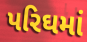
પરિઘમાં